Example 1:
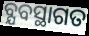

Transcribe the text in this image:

ବ୍ଯବସ୍ଥାଗତ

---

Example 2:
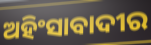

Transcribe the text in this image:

ଅହିଂସାବାଦୀର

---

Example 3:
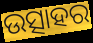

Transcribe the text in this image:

ଉତ୍ସାହର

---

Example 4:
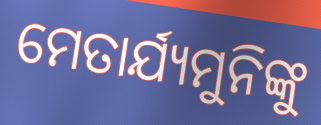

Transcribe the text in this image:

ମେତାର୍ଯ୍ୟମୁନିଙ୍କୁ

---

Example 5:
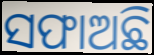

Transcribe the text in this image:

ସଫାଅଛି